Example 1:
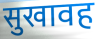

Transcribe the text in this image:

सुखावह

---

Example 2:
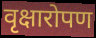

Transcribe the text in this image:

वृक्षारोपण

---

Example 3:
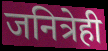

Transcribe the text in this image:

जनित्रेही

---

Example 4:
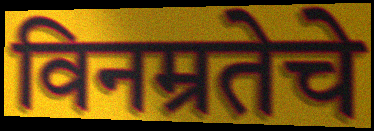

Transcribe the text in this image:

विनम्रतेचे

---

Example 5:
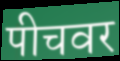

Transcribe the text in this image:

पीचवर